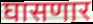
घासणार